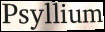
Psyllium